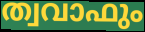
ത്വവാഫും